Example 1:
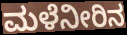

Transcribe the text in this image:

ಮಳೆನೀರಿನ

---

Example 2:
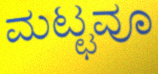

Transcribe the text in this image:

ಮಟ್ಟವೂ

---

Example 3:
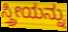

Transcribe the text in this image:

ಸ್ತ್ರೀಯನ್ನು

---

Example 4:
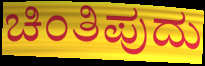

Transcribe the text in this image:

ಚಿಂತಿಪುದು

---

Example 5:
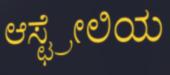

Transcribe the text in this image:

ಆಸ್ಟ್ರೇಲಿಯ